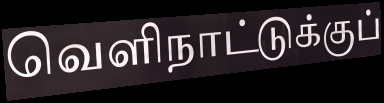
வெளிநாட்டுக்குப்